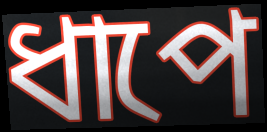
ধাপে